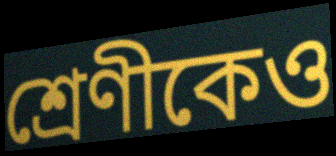
শ্রেণীকেও